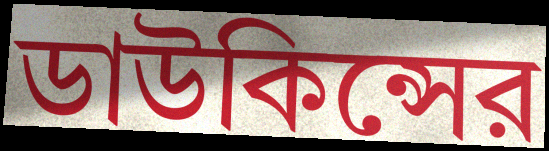
ডাউকিন্সের